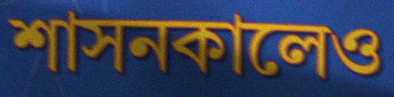
শাসনকালেও